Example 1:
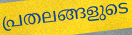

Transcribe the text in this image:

പ്രതലങ്ങളുടെ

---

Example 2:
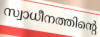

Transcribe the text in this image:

സ്വാധീനത്തിന്റെ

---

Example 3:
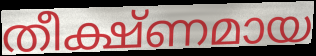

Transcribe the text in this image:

തീക്ഷ്ണമായ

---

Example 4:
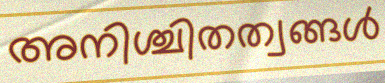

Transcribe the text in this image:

അനിശ്ചിതത്വങ്ങൾ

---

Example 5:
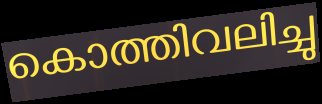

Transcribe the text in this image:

കൊത്തിവലിച്ചു